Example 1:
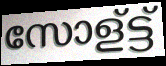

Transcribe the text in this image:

സോള്ട്ട്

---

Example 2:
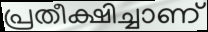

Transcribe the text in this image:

പ്രതീക്ഷിച്ചാണ്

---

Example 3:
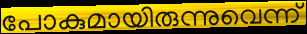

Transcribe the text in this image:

പോകുമായിരുന്നുവെന്ന്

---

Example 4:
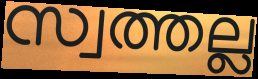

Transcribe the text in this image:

സ്വത്തല്ല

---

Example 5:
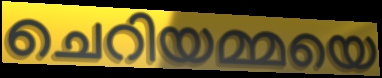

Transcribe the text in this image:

ചെറിയമ്മയെ